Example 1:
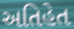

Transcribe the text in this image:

અતિહેત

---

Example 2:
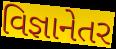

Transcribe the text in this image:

વિજ્ઞાનેતર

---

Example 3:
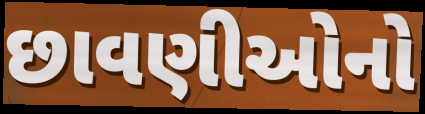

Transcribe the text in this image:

છાવણીઓનો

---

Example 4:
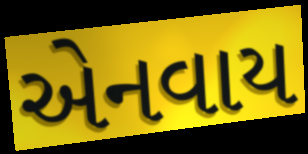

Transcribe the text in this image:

એનવાય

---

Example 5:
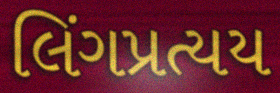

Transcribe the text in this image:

લિંગપ્રત્યય